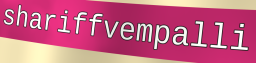
shariffvempalli